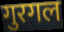
गुरगल